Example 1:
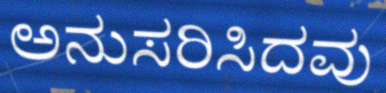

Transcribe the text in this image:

ಅನುಸರಿಸಿದವು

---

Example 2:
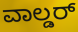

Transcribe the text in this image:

ವಾಲ್ಡರ್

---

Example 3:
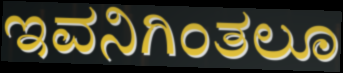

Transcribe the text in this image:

ಇವನಿಗಿಂತಲೂ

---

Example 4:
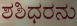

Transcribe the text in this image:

ಶಶಿಧರನು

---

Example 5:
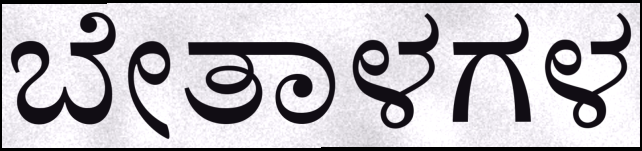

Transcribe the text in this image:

ಬೇತಾಳಗಳ